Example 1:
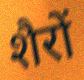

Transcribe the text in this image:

शैरों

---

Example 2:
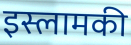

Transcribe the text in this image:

इस्लामकी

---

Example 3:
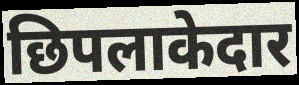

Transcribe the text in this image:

छिपलाकेदार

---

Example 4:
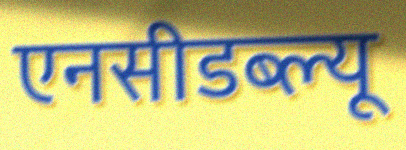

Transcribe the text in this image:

एनसीडब्ल्यू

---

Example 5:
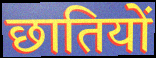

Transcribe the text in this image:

छातियों